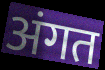
अंगत